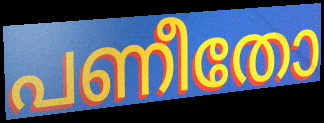
പണീതോ